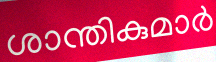
ശാന്തികുമാർ